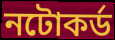
নটোকর্ড